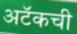
अटॅकची